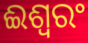
ଈଶ୍ୱରଂ